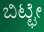
ಬಿಟ್ಟೇ